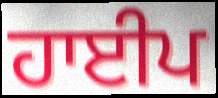
ਹਾਈਪ